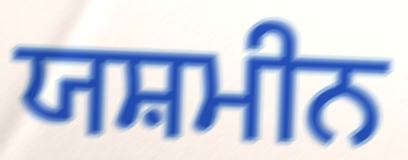
ਯਸ਼ਮੀਨ